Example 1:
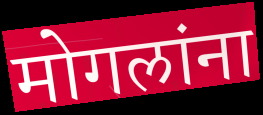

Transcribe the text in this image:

मोगलांना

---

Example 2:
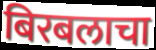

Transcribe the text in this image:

बिरबलाचा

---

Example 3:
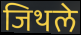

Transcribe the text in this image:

जिथले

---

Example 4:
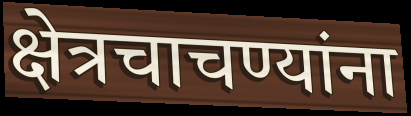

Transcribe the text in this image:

क्षेत्रचाचण्यांना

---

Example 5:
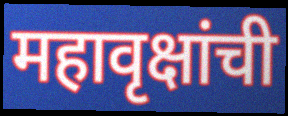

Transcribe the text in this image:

महावृक्षांची